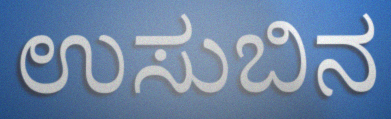
ಉಸುಬಿನ